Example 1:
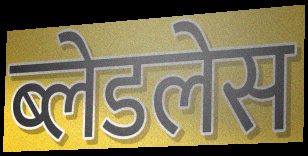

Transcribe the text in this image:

ब्लेडलेस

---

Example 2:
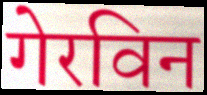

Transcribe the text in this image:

गेरविन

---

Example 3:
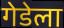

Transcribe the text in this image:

गेडेला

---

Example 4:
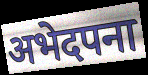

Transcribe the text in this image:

अभेदपना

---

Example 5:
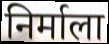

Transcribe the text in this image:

निर्माला